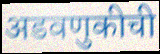
अडवणुकीची